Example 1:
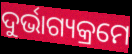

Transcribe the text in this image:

ଦୁର୍ଭାଗ୍ୟକ୍ରମେ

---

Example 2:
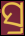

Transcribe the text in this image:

ସ୍ର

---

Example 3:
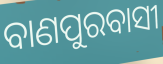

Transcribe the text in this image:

ବାଣପୁରବାସୀ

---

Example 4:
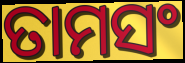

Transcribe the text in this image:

ତାମସଂ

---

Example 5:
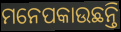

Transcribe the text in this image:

ମନେପକାଉଛନ୍ତି